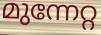
മുന്നേറ്റ